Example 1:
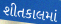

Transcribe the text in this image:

શીતકાલમાં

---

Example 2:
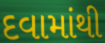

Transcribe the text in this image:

દવામાંથી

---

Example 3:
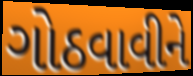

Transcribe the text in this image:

ગોઠવાવીને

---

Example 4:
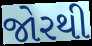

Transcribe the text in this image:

જોરથી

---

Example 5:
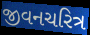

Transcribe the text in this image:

જીવનચરિત્ર